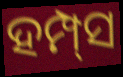
ହମ୍ପ୍‌ସ